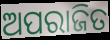
ଅପରାଜିତ